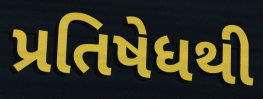
પ્રતિષેધથી